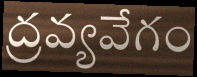
ద్రవ్యవేగం